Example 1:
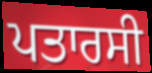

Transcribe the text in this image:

ਪਤਾਰਸੀ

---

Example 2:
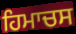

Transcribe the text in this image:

ਹਿਮਾਚਸ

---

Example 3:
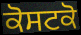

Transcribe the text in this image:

ਕੋਸਟਕੋ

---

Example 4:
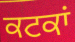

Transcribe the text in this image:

ਕਟਕਾਂ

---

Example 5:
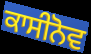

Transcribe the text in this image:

ਕਾਸੀਨੋਵ